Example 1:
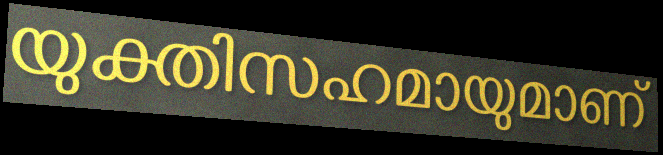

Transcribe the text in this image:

യുക്തിസഹമായുമാണ്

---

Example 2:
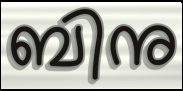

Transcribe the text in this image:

ബിനു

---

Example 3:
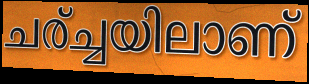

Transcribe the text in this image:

ചര്ച്ചയിലാണ്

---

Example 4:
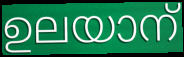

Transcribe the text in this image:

ഉലയാന്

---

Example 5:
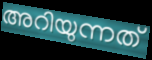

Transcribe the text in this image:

അറിയുന്നത്